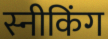
स्नीकिंग